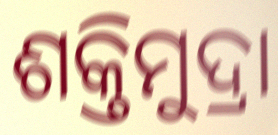
ଶକ୍ତିମୁଦ୍ରା